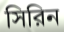
সিরিন